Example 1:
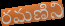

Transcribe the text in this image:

రమణిని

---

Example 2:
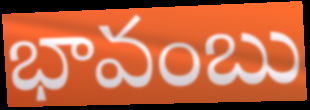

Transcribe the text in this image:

భావంబు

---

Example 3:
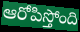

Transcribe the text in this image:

ఆరోపిస్తోంది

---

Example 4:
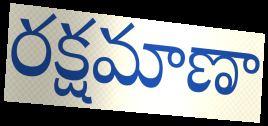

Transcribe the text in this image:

రక్షమాణా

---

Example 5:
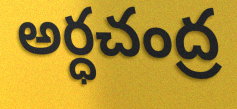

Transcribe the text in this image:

అర్ధచంద్ర